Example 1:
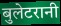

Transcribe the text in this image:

बुलेटरानी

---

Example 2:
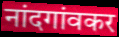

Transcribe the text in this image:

नांदगांवकर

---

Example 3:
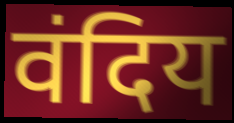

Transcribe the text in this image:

वंदिय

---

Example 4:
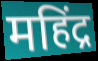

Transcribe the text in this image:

महिंद्र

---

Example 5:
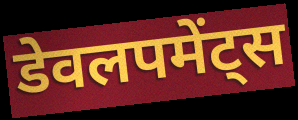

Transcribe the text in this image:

डेवलपमेंट्स